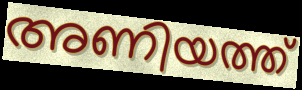
അണിയത്ത്